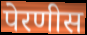
पेरणीस